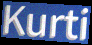
Kurti